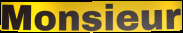
Monsieur